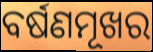
ବର୍ଷଣମୂଖର